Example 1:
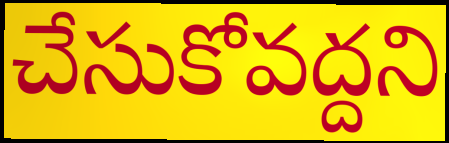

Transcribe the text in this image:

చేసుకోవద్దని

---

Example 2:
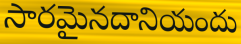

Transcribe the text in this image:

సారమైనదానియందు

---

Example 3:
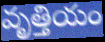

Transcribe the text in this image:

వృత్తియం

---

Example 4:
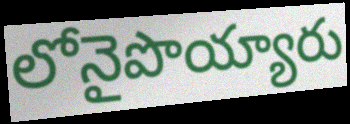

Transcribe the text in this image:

లోనైపొయ్యారు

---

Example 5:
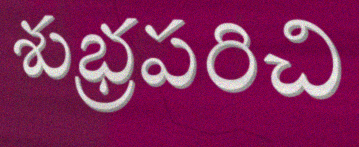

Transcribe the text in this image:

శుభ్రపరిచి